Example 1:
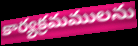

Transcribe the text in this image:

కార్యక్రమములను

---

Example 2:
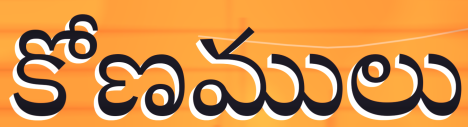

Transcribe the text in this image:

కోణములు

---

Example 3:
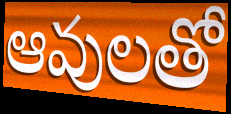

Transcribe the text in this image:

ఆవులతో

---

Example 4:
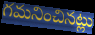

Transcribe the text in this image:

గమనించినట్లు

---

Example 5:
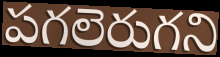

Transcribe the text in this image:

పగలెరుగని